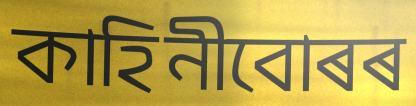
কাহিনীবোৰৰ